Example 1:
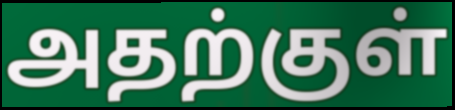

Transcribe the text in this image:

அதற்குள்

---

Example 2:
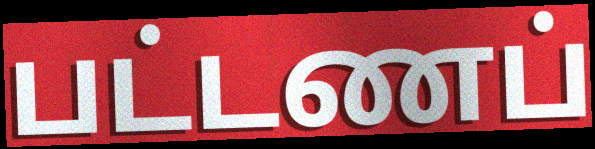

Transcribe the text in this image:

பட்டணப்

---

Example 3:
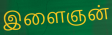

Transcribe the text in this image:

இளைஞன்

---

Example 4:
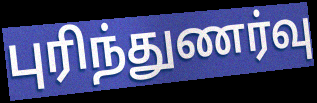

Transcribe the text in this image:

புரிந்துணர்வு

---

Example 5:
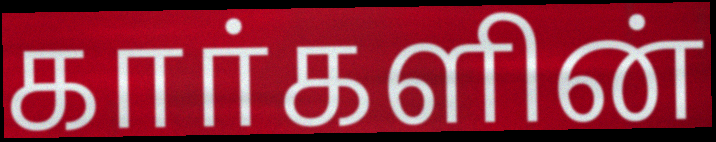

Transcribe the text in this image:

கார்களின்